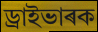
ড্ৰাইভাৰক